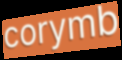
corymb